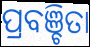
ପ୍ରବଞ୍ଚିତା